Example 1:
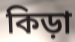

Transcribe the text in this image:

কিড়া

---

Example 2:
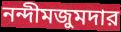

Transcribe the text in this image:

নন্দীমজুমদার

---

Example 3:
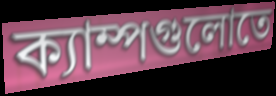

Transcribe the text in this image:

ক্যাম্পগুলোতে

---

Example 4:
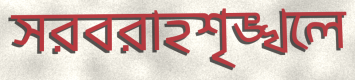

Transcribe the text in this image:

সরবরাহশৃঙ্খলে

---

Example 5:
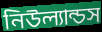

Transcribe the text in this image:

নিউল্যান্ডস